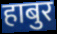
हाबुर